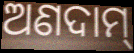
ଅଣଦାମ୍